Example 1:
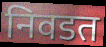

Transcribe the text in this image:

निवडत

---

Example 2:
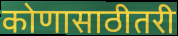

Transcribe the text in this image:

कोणासाठीतरी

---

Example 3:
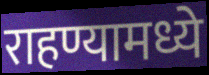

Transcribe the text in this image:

राहण्यामध्ये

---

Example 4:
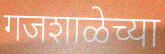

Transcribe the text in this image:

गजशाळेच्या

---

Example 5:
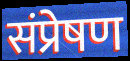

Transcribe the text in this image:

संप्रेषण